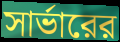
সার্ভারের